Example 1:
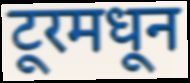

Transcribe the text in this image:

टूरमधून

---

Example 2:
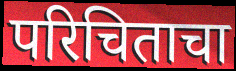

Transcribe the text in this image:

परिचिताचा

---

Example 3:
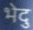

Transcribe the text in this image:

भेदु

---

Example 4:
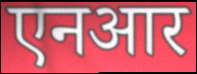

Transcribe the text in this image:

एनआर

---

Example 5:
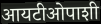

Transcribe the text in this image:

आयटीओपाशी